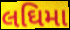
લઘિમા